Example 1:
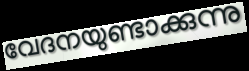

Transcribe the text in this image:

വേദനയുണ്ടാക്കുന്നു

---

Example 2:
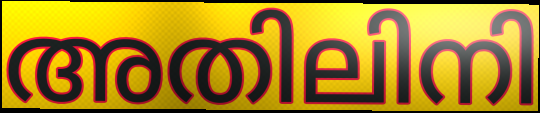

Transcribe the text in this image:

അതിലിനി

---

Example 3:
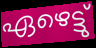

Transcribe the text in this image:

ഏഴെട്ടു്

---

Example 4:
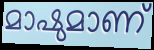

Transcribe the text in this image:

മാഷുമാണ്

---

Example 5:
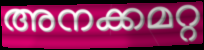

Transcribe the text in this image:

അനക്കമറ്റ